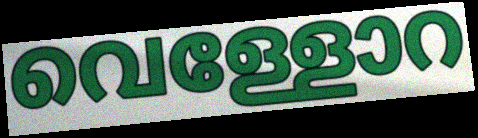
വെള്ളോറ